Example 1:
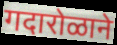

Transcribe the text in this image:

गदारोळाने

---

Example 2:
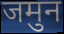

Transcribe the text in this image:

जमुन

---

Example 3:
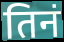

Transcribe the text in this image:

तिनं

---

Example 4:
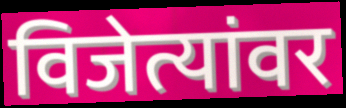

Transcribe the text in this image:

विजेत्यांवर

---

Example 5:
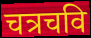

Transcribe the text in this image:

चत्रचवि